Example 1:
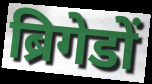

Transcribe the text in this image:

ब्रिगेडों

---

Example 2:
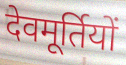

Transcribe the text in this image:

देवमूर्तियों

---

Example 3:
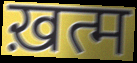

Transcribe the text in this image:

ख़त्‍म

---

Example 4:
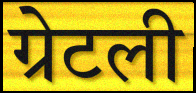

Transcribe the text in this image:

ग्रेटली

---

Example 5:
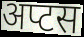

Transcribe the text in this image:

अप्टस